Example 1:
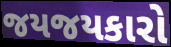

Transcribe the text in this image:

જયજયકારો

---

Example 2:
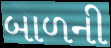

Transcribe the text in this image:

બાળની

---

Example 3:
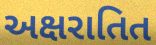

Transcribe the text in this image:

અક્ષરાતિત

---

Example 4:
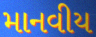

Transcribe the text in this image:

માનવીય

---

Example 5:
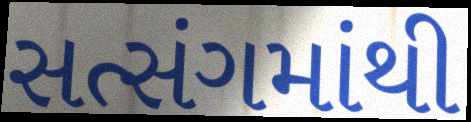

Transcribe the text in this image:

સત્સંગમાંથી